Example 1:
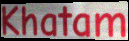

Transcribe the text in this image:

Khatam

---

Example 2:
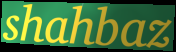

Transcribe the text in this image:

shahbaz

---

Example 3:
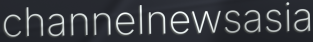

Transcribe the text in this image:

channelnewsasia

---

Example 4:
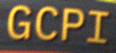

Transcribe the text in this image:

GCPI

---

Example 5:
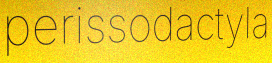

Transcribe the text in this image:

perissodactyla